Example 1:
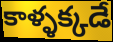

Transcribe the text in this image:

కాళ్ళక్కడే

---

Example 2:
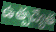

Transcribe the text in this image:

ఉత్పద్యేత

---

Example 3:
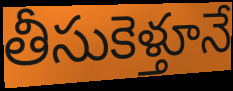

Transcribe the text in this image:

తీసుకెళ్తూనే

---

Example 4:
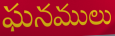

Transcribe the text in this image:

ఘనములు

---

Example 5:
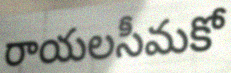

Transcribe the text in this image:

రాయలసీమకో